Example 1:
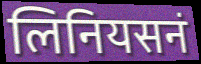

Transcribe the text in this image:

लिनियसनं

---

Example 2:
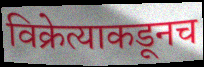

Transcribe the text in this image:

विक्रेत्याकडूनच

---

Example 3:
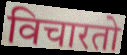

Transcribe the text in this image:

विचारतो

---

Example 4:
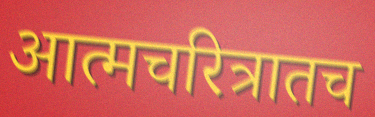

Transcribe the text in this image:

आत्मचरित्रातच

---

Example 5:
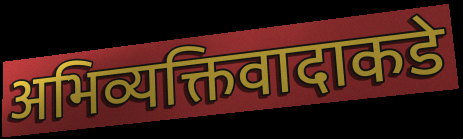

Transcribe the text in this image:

अभिव्यक्तिवादाकडे